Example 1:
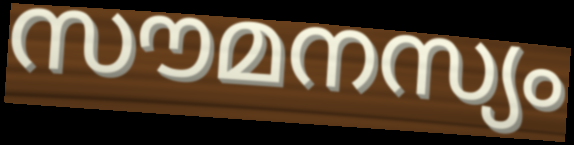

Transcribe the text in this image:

സൗമനസ്യം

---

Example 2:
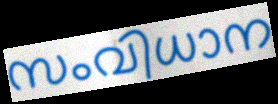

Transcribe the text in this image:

സംവിധാന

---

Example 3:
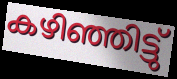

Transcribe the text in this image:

കഴിഞ്ഞിട്ടു്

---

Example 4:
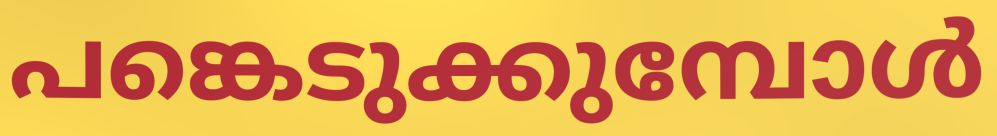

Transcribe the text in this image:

പങ്കെടുക്കുമ്പോൾ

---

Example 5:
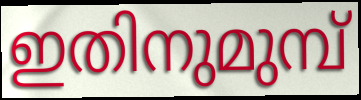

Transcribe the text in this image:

ഇതിനുമുമ്പ്